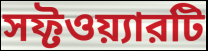
সফ্টওয়্যারটি